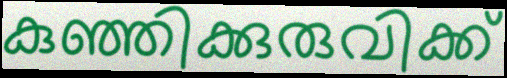
കുഞ്ഞിക്കുരുവിക്ക്